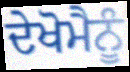
ਦੇਖੋਮੈਨੂੰ